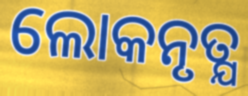
ଲୋକନୃତ୍ଯ